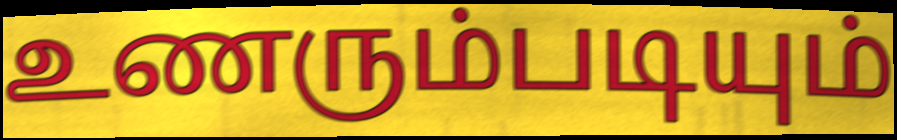
உணரும்படியும்